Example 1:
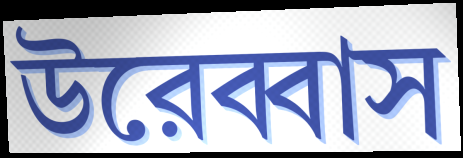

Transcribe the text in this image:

উরেব্বাস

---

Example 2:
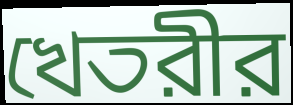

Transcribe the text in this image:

খেতরীর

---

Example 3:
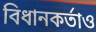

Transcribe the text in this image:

বিধানকর্তাও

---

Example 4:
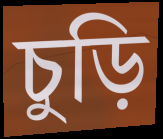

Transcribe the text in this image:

চুড়ি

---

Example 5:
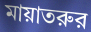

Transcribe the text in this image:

মায়াতরুর